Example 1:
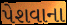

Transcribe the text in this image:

પેશવાના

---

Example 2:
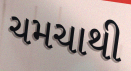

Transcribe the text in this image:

ચમચાથી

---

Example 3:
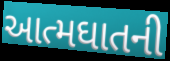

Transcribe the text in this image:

આત્મઘાતની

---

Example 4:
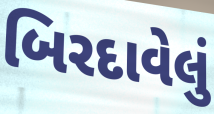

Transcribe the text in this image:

બિરદાવેલું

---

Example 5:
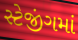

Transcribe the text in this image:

સ્ટેજીંગમાં